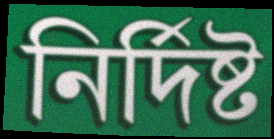
নিৰ্দিষ্ট